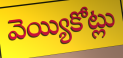
వెయ్యికోట్లు